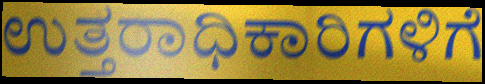
ಉತ್ತರಾಧಿಕಾರಿಗಳಿಗೆ